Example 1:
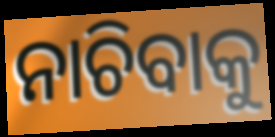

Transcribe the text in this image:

ନାଚିବାକୁ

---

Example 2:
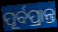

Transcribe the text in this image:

ପୂର୍ବପ୍ରାନ୍ତ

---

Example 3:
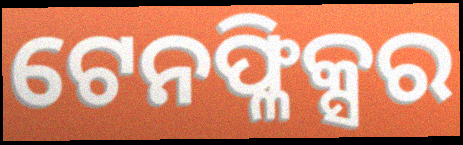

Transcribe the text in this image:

ଟେନଫ୍ଳିକ୍ସର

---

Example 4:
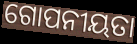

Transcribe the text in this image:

ଗୋପନୀୟତା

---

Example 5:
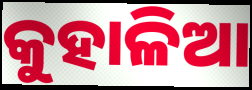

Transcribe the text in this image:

କୁହାଳିଆ